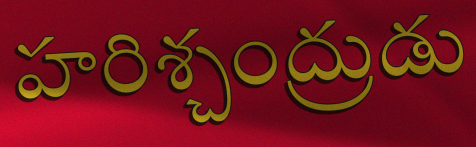
హరిశ్చంద్రుడు